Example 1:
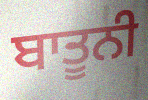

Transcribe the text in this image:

ਬਾਤੂਨੀ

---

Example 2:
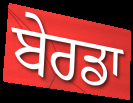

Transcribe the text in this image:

ਬੇਰਡਾ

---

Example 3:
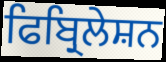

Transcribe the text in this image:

ਫਿਬ੍ਰਿਲੇਸ਼ਨ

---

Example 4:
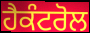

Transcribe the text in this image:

ਹੈਕੰਟਰੋਲ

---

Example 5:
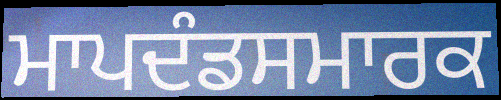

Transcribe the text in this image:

ਮਾਪਦੰਡਸਮਾਰਕ